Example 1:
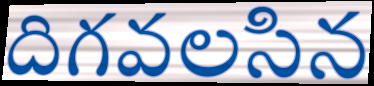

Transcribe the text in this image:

దిగవలసిన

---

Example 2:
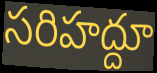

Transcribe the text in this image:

సరిహద్దూ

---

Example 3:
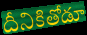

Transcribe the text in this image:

దీనికితోడూ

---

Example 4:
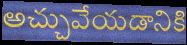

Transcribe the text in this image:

అచ్చువేయడానికి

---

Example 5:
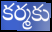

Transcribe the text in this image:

కర్మకు